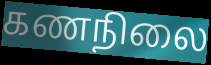
கணநிலை